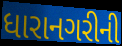
ધારાનગરીની